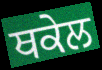
ਥਕੇਲ